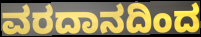
ವರದಾನದಿಂದ